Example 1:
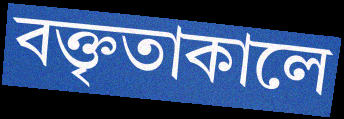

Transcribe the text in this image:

বক্তৃতাকালে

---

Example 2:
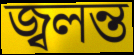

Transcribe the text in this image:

জ্বলন্ত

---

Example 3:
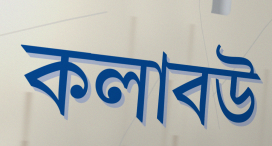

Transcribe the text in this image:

কলাবউ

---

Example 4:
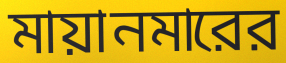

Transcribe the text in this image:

মায়ানমারের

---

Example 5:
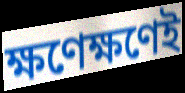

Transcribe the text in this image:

ক্ষণেক্ষণেই